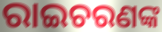
ରାଇଚରଣଙ୍କ